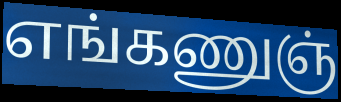
எங்கணுஞ்